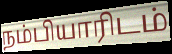
நம்பியாரிடம்